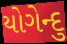
યોગેન્દુ